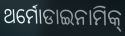
ଥର୍ମୋଡାଇନାମିକ୍